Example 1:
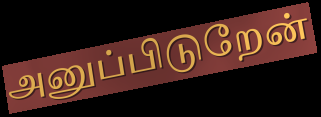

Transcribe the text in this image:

அனுப்பிடுறேன்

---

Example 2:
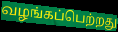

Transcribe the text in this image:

வழங்கப்பெற்றது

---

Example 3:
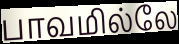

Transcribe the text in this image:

பாவமில்லே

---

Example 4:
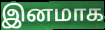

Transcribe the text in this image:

இனமாக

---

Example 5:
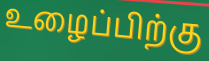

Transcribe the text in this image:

உழைப்பிற்கு